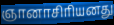
ஞானாசிரியனது